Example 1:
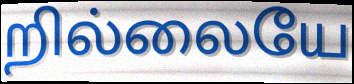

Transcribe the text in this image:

றில்லையே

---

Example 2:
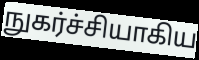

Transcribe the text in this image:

நுகர்ச்சியாகிய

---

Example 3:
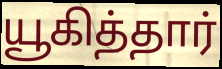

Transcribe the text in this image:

யூகித்தார்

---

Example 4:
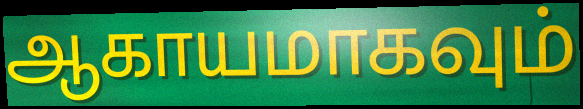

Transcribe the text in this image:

ஆகாயமாகவும்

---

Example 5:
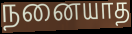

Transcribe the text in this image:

நனையாத